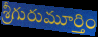
శ్రీగురుమూర్తిం